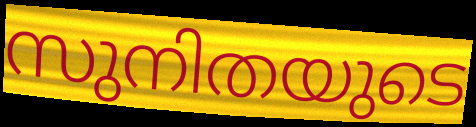
സുനിതയുടെ